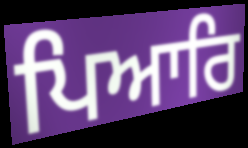
ਪਿਆਰਿ